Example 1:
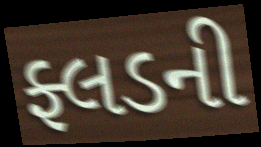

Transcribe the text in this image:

ફ્લડની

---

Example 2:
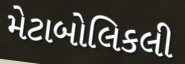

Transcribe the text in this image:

મેટાબોલિકલી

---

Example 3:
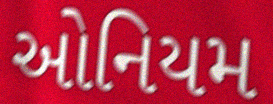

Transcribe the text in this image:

ઓનિયમ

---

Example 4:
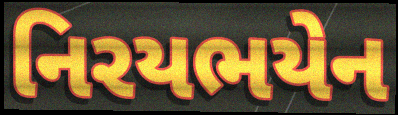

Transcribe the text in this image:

નિરયભયેન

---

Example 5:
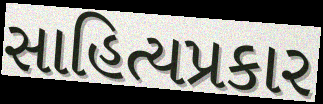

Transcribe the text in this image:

સાહિત્યપ્રકાર